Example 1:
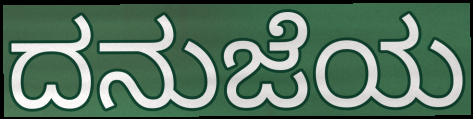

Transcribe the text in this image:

ದನುಜೆಯ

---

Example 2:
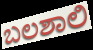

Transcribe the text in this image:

ಬಲಶಾಲಿ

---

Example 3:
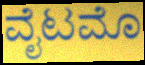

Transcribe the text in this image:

ವೈಟಮೊ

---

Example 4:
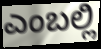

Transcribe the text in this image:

ಎಂಬಲ್ಲಿ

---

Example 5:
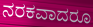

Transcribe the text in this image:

ನರಕವಾದರೂ